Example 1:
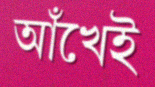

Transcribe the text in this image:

আঁখেই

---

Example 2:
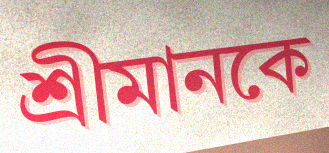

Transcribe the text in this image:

শ্রীমানকে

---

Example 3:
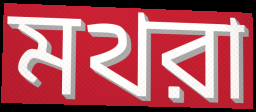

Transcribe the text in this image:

মথরা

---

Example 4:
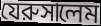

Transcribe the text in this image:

যেরুসালেম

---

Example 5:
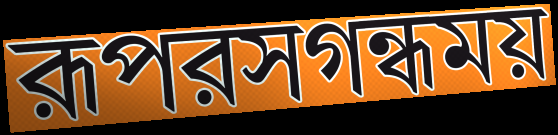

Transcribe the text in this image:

রূপরসগন্ধময়